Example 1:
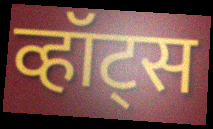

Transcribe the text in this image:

व्हॉट्स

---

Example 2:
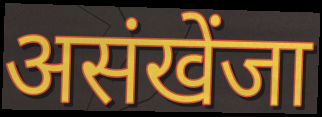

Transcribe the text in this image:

असंखेंजा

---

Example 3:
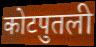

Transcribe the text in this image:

कोटपुतली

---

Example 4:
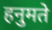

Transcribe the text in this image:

हनुमते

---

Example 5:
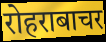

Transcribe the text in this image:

रोहराबाचर